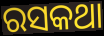
ରସକଥା